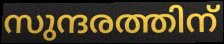
സുന്ദരത്തിന്